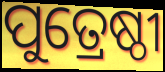
ପୁତ୍ରେଷ୍ଠୀ